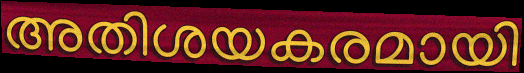
അതിശയകരമായി